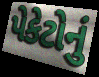
પેકેટોનું